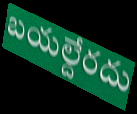
బయల్దేరదు